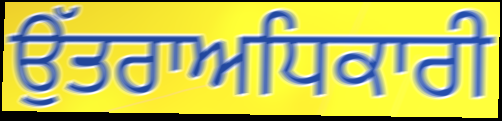
ਉੱਤਰਾਅਧਿਕਾਰੀ